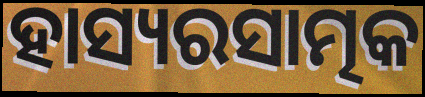
ହାସ୍ୟରସାତ୍ମକ